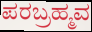
ಪರಬ್ರಹ್ಮವ